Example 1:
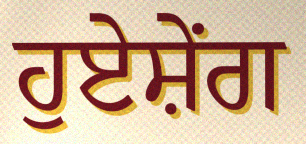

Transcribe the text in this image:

ਹੁਏਸ਼ੇਂਗ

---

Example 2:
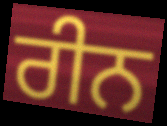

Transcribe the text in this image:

ਰੀਨ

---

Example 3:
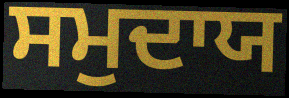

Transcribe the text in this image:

ਸਮੁਦਾਯ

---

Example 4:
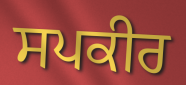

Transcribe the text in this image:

ਸਪਕੀਰ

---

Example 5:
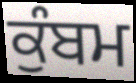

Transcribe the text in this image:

ਕੁੰਬਮ